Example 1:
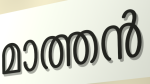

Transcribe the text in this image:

മാത്തൻ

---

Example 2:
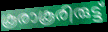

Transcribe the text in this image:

കൂരാകൂരിരുട്ട്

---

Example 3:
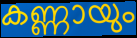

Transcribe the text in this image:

കണ്ണായും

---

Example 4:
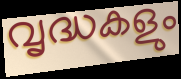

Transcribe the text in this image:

വൃദ്ധകളും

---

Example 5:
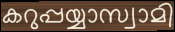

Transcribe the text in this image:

കറുപ്പയ്യാസ്വാമി